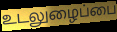
உடலுழைப்பை